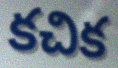
కచిక